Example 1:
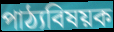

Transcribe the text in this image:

পাঠ্যবিষয়ক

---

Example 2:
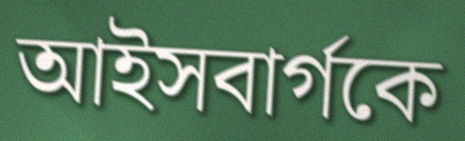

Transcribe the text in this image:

আইসবার্গকে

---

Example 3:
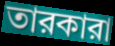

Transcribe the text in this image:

তারকারা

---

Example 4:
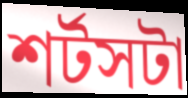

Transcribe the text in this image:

শর্টসটা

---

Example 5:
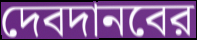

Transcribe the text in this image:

দেবদানবের